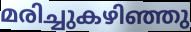
മരിച്ചുകഴിഞ്ഞു